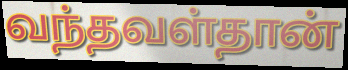
வந்தவள்தான்